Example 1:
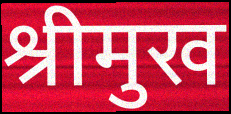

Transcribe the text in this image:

श्रीमुख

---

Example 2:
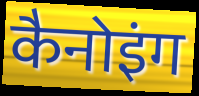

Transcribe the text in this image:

कैनोइंग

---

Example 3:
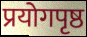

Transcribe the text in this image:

प्रयोगपृष्ठ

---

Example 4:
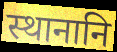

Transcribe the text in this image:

स्थानानि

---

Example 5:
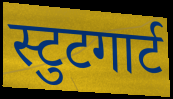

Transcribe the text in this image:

स्टुटगार्ट